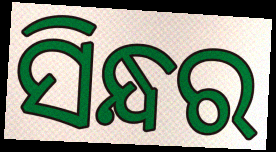
ସିନ୍ଧର